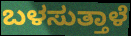
ಬಳಸುತ್ತಾಳೆ